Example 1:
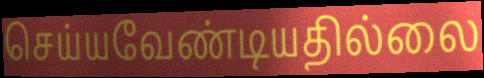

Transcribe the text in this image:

செய்யவேண்டியதில்லை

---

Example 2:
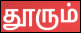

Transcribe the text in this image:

தூரும்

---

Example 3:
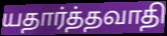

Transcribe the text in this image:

யதார்த்தவாதி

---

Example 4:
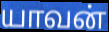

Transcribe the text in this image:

யாவன்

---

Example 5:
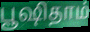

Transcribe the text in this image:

பூஷிதாம்